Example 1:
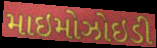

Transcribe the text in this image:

માઇમોઝોઇડી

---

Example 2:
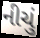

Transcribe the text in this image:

નીચું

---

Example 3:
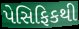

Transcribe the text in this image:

પેસિફિકથી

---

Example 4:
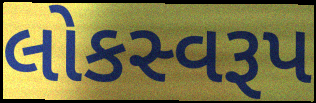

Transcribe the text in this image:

લોકસ્વરૂપ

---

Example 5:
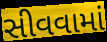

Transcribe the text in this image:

સીવવામાં